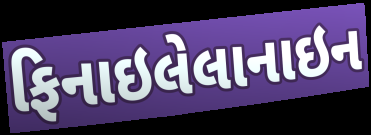
ફિનાઇલેલાનાઇન